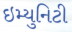
ઇમ્યુનિટી